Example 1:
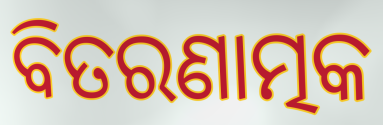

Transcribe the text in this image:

ବିତରଣାତ୍ମକ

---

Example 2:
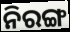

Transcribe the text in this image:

ନିରଙ୍ଗ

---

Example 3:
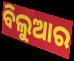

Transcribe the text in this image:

ବିଲୁଆର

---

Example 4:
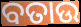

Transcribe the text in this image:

ବତାଉ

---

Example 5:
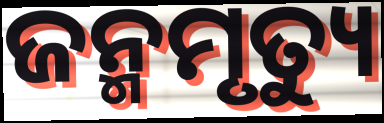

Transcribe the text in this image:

ଜନ୍ମମୃତ୍ୟୁ